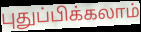
புதுப்பிக்கலாம்